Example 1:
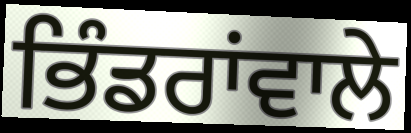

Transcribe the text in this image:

ਭਿੰਡਰਾਂਵਾਲੇ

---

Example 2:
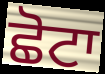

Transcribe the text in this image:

ਛੋਟਾ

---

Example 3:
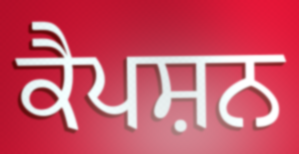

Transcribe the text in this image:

ਕੈਪਸ਼ਨ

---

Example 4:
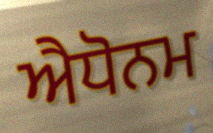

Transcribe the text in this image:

ਐਧੋਨਮ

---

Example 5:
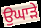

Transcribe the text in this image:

ਉਘਾੜੇ